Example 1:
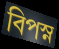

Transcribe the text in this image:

বিপস্ন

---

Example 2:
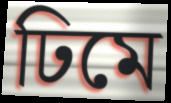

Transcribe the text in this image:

ঢিমে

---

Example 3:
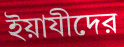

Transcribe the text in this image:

ইয়াযীদের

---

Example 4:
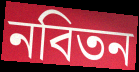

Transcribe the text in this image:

নবিতন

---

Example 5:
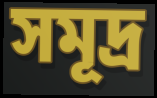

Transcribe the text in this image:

সমূদ্র